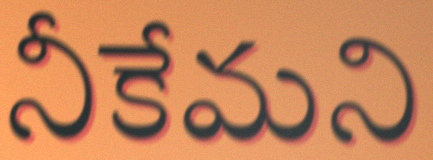
నీకేమని